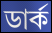
ডাৰ্ক